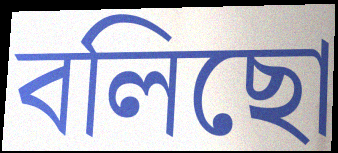
বলিছো